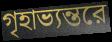
গৃহাভ্যন্তরে